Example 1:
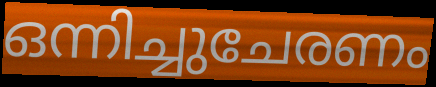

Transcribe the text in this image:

ഒന്നിച്ചുചേരണം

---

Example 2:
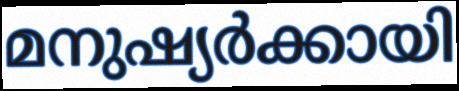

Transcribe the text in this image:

മനുഷ്യർക്കായി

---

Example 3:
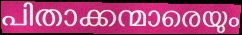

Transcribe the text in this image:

പിതാക്കന്മാരെയും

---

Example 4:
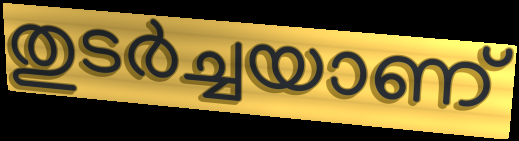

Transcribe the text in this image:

തുടർച്ചയാണ്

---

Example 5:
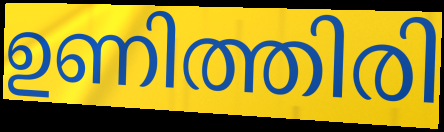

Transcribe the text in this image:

ഉണിത്തിരി